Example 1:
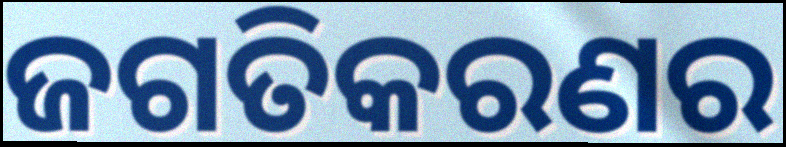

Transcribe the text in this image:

ଜଗତିକରଣର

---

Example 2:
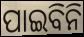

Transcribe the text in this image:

ପାଇବିନି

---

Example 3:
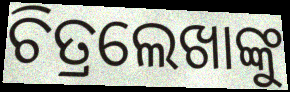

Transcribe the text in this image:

ଚିତ୍ରଲେଖାଙ୍କୁ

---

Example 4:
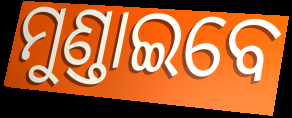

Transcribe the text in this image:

ମୁଣ୍ଡାଇବେ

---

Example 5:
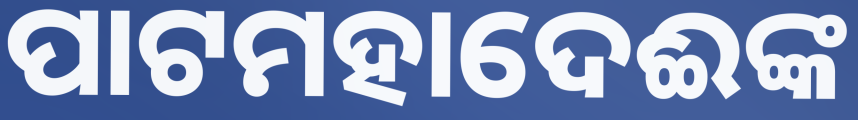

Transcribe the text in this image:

ପାଟମହାଦେଈଙ୍କ